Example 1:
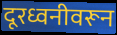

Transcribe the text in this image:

दूरध्वनीवरून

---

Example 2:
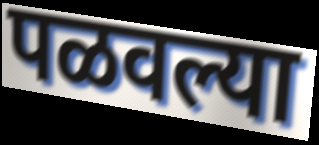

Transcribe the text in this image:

पळवल्या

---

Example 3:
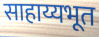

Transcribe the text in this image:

साहाय्यभूत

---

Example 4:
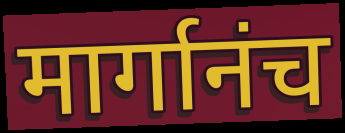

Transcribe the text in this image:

मार्गानंच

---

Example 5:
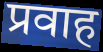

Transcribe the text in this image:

प्रवाह